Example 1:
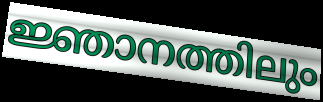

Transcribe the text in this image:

ജ്ഞാനത്തിലും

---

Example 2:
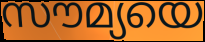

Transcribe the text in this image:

സൗമ്യയെ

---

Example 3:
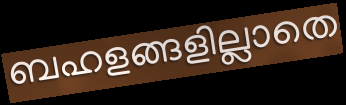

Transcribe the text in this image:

ബഹളങ്ങളില്ലാതെ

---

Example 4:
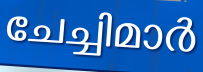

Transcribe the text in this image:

ചേച്ചിമാർ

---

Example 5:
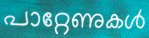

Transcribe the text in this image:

പാറ്റേണുകൾ